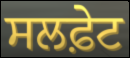
ਸਲਫ਼ੇਟ